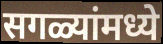
सगळ्यांमध्ये